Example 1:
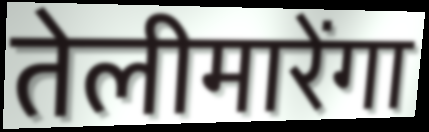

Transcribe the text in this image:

तेलीमारेंगा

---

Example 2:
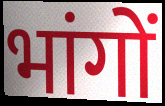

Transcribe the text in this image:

भांगों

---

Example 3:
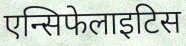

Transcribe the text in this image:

एन्सिफेलाइटिस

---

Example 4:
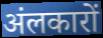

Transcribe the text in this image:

अंलकारों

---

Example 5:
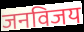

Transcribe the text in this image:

जनविजय